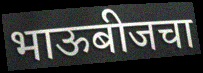
भाऊबीजचा